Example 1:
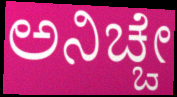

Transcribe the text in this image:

ಅನಿಚ್ಚೇ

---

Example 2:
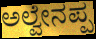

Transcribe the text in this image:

ಅಲ್ವೇನಪ್ಪ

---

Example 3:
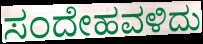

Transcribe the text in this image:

ಸಂದೇಹವಳಿದು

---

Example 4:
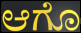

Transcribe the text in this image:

ಆಗೊ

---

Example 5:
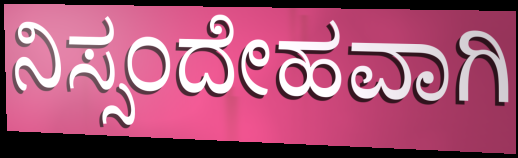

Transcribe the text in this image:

ನಿಸ್ಸಂದೇಹವಾಗಿ